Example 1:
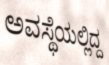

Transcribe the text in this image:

ಅವಸ್ಥೆಯಲ್ಲಿದ್ದ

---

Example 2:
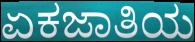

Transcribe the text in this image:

ಏಕಜಾತಿಯ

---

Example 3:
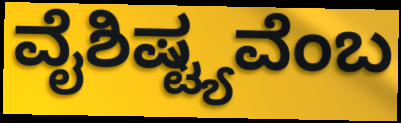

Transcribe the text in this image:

ವೈಶಿಷ್ಟ್ಯವೆಂಬ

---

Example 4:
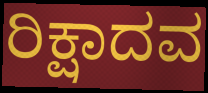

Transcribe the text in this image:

ರಿಕ್ಷಾದವ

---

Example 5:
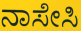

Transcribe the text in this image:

ನಾಸೇಸಿ